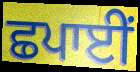
ਛਪਾਈਂ